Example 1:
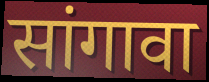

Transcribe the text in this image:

सांगावा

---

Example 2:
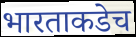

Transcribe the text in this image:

भारताकडेच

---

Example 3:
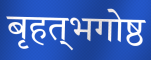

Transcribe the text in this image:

बृहत्‌भगोष्ठ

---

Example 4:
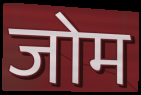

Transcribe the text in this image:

जोम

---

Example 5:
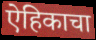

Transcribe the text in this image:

ऐहिकाचा